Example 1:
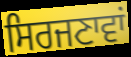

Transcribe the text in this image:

ਸਿਰਜਣਾਵਾਂ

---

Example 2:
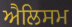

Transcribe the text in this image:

ਐਲਿਸਮ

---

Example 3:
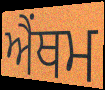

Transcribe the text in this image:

ਐਂਥਮ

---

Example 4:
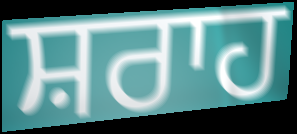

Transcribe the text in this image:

ਸ਼ਰਾਹ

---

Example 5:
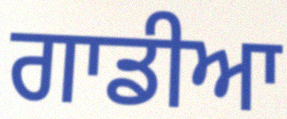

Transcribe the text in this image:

ਗਾਡੀਆ